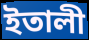
ইতালী